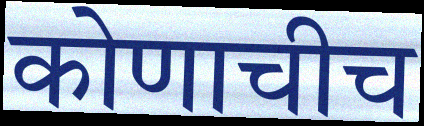
कोणाचीच